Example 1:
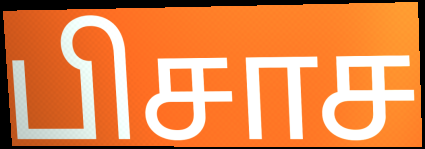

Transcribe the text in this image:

பிசாச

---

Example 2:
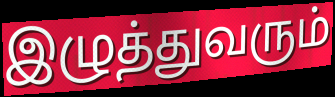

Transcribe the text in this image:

இழுத்துவரும்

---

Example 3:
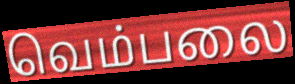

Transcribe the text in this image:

வெம்பலை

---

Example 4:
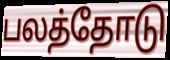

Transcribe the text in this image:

பலத்தோடு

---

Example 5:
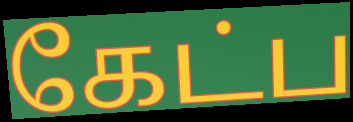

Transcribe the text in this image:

கேட்ப